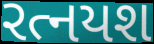
રત્નયશ